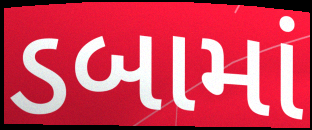
ડબામાં